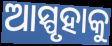
ଆସ୍ପୃହାକୁ